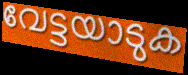
വേട്ടയാടുക